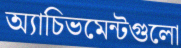
অ্যাচিভমেন্টগুলো